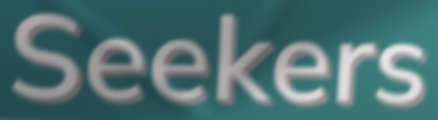
Seekers